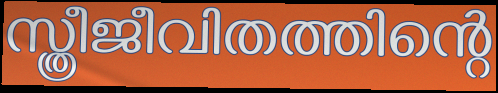
സ്ത്രീജീവിതത്തിന്റെ